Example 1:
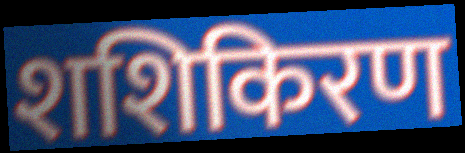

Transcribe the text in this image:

शशिकिरण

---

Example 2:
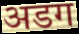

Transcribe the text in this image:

अडग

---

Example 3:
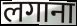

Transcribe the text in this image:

लगाना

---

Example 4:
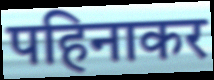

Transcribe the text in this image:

पहिनाकर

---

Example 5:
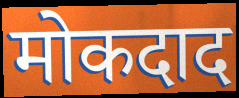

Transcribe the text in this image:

मोकदाद